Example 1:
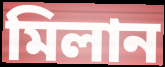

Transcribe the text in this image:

মিলান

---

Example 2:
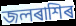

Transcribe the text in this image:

জলৰাশিৰ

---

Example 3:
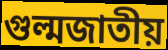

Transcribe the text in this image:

গুল্মজাতীয়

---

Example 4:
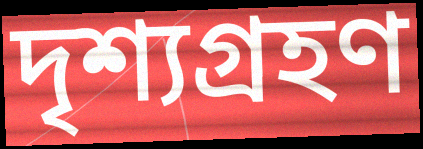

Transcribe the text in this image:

দৃশ্যগ্ৰহণ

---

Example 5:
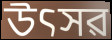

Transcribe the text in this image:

উৎসৱ